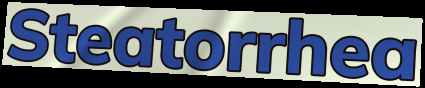
Steatorrhea